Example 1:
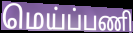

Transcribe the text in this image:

மெய்ப்பணி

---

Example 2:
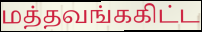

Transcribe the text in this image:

மத்தவங்ககிட்ட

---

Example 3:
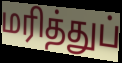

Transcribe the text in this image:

மரித்துப்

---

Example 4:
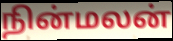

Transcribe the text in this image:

நின்மலன்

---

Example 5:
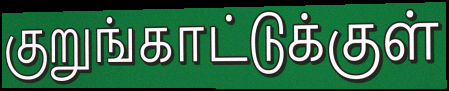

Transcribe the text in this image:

குறுங்காட்டுக்குள்